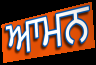
ਆਮਨ